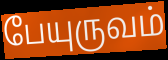
பேயுருவம்